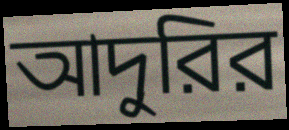
আদুরির